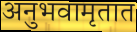
अनुभवामृतात